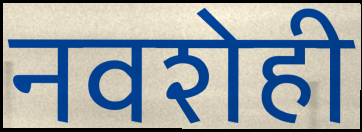
नवशेही